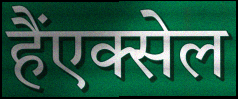
हैंएक्सेल